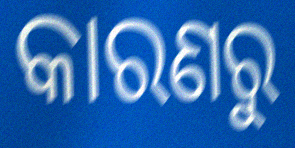
କାରଣରୁ